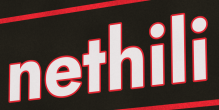
nethili